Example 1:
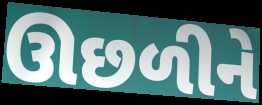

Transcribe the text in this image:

ઊછળીને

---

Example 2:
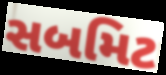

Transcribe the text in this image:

સબમિટ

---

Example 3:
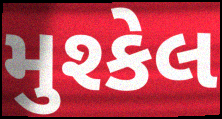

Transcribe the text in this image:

મુશ્કેલ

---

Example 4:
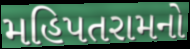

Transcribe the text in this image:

મહિપતરામનો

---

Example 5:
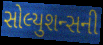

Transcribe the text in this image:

સોલ્યુશન્સની